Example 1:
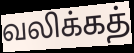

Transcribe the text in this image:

வலிக்கத்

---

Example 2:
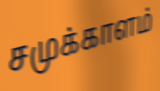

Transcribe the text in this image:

சமுக்காளம்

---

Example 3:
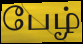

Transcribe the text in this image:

பேழ்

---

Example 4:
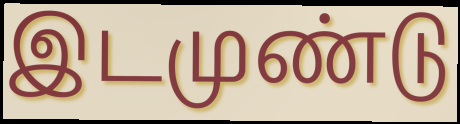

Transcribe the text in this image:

இடமுண்டு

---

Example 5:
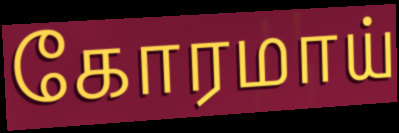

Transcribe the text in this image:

கோரமாய்